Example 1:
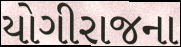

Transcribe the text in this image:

યોગીરાજના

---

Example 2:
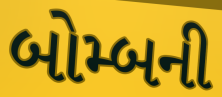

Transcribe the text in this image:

બોમ્બની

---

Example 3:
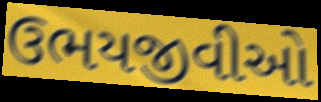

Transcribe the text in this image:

ઉભયજીવીઓ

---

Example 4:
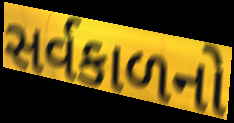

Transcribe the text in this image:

સર્વકાળનો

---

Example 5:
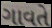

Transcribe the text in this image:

ગાવતે